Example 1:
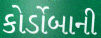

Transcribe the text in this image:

કોર્ડોબાની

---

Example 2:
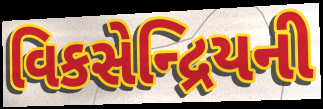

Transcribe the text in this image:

વિકસેન્દ્રિયની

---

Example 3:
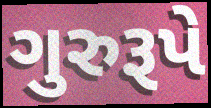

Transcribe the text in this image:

ગુરુરૂપે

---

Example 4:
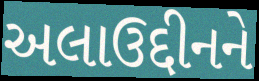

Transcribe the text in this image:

અલાઉદ્દીનને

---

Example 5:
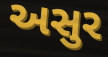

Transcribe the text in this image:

અસુર